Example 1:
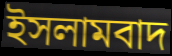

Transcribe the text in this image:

ইসলামবাদ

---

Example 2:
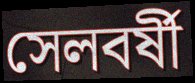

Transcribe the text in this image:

সেলবর্ষী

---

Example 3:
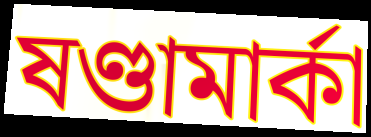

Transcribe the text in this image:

ষণ্ডামার্কা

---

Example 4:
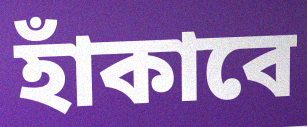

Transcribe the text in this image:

হাঁকাবে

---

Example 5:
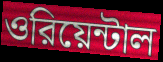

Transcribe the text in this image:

ওরিয়েন্টাল